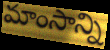
మాంసాన్ని